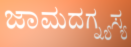
ಜಾಮದಗ್ನ್ಯಸ್ಯ